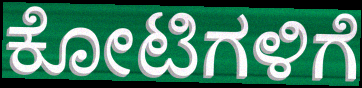
ಕೋಟಿಗಳಿಗೆ